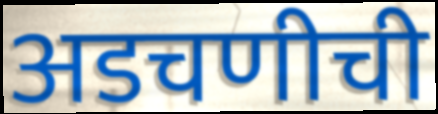
अडचणीची